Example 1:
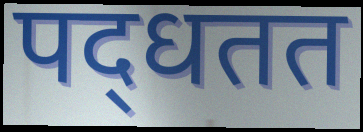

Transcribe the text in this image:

पद्धतत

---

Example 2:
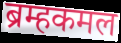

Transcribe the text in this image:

ब्रम्हकमल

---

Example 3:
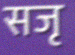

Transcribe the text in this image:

सजृ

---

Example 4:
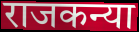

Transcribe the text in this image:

राजकन्या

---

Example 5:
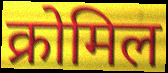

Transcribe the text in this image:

क्रोमिल